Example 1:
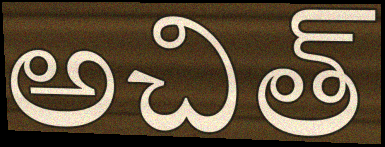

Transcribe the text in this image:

అచిత్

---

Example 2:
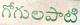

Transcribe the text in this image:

గోగులపాటి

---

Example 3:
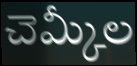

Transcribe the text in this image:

చెమ్కీల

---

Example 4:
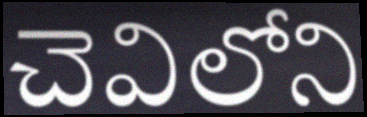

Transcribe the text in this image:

చెవిలోని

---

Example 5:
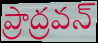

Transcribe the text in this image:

ప్రాద్రవన్